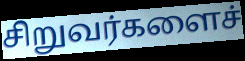
சிறுவர்களைச்